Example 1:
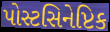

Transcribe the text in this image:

પોસ્ટસિનેપ્ટિક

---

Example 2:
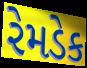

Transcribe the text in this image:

રેમડેક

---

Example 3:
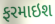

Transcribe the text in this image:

ફરમાઇશ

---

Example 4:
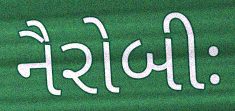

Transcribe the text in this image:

નૈરોબીઃ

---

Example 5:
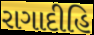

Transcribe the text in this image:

રાગાદીહિ